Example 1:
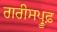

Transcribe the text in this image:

ਗਰੀਸਪ੍ਰੂਫ਼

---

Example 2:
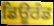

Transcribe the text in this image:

ਡਿਊਰੰਡ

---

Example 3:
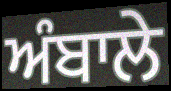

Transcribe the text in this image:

ਅੰਬਾਲੇ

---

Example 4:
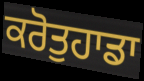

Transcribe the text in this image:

ਕਰੋਤੁਹਾਡਾ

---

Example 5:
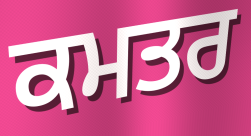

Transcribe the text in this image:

ਕਮਤਰ